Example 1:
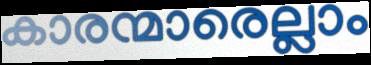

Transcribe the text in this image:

കാരന്മാരെല്ലാം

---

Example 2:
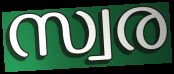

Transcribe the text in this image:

സ്വര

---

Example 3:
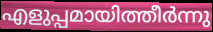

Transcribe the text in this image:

എളുപ്പമായിത്തീർന്നു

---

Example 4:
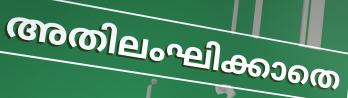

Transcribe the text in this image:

അതിലംഘിക്കാതെ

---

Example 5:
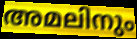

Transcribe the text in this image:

അമലിനും